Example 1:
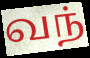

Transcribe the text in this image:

வந்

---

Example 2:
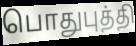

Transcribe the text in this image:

பொதுபுத்தி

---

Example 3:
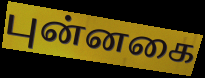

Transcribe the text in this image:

புன்னகை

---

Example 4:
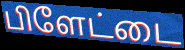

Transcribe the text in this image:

பிளேட்டை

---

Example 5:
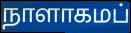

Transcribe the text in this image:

நாளாகமப்